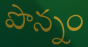
పొన్నం